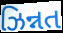
ઝિન્નત